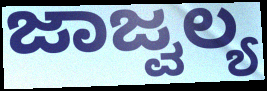
ಜಾಜ್ವಲ್ಯ